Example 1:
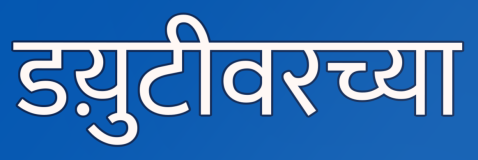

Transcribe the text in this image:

डय़ुटीवरच्या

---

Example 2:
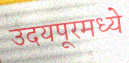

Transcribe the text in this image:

उदयपूरमध्ये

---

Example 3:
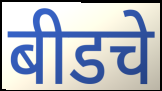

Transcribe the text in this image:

बीडचे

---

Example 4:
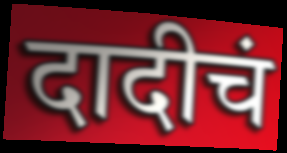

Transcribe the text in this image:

दादीचं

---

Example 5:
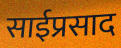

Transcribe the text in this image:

साईप्रसाद